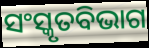
ସଂସ୍କୃତବିଭାଗ